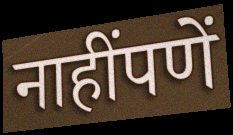
नाहींपणें